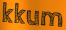
kkum